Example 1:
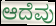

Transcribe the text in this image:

ಆದೆವು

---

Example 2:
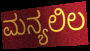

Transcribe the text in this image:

ಮನ್ಯಲಿಲ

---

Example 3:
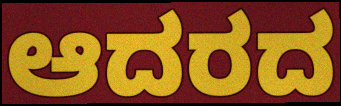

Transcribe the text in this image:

ಆದರದ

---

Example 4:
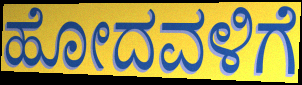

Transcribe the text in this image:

ಹೋದವಳಿಗೆ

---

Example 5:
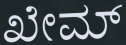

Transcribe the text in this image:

ಖೇಮ್